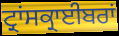
ਟ੍ਰਾਂਸਕ੍ਰਾਈਬਰਾਂ